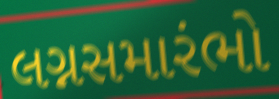
લગ્નસમારંભો